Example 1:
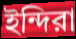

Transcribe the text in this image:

ইন্দিরা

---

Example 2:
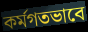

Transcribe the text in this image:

কর্মগতভাবে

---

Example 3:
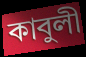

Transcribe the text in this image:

কাবুলী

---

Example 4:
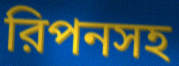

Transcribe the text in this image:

রিপনসহ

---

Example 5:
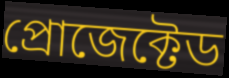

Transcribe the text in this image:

প্রোজেক্টেড